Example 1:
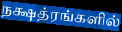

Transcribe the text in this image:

நக்ஷத்ரங்களில்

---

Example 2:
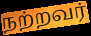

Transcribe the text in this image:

நற்றவர்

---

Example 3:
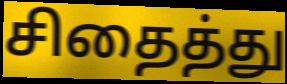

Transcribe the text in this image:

சிதைத்து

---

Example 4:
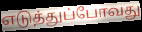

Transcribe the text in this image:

எடுத்துப்போவது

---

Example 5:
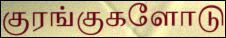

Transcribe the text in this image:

குரங்குகளோடு